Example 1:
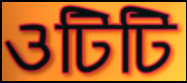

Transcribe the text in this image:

ওটিটি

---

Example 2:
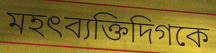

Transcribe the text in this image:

মহৎব্যক্তিদিগকে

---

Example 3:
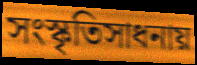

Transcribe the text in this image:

সংস্কৃতিসাধনায়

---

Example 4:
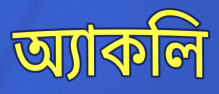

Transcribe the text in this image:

অ্যাকলি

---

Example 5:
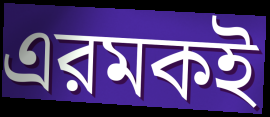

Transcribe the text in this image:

এরমকই